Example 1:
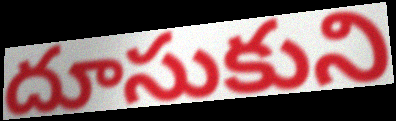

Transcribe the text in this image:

దూసుకుని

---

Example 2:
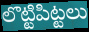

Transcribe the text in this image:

లొట్టిపిట్టలు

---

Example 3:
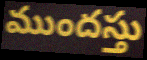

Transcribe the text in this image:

ముందస్తు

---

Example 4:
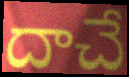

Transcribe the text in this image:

దాచే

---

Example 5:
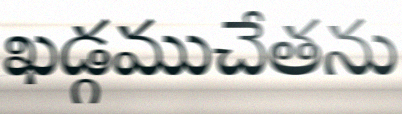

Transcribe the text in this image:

ఖడ్గముచేతను